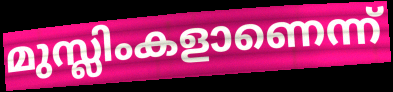
മുസ്ലിംകളാണെന്ന്